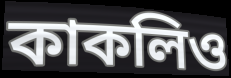
কাকলিও